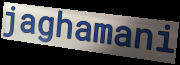
jaghamani